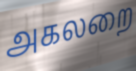
அகலறை